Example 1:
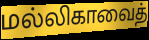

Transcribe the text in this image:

மல்லிகாவைத்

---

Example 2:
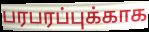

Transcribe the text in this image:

பரபரப்புக்காக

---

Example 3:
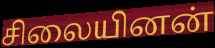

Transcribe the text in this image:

சிலையினன்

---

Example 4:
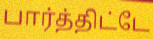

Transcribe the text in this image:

பார்த்திட்டே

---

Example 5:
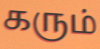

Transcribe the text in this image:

கரும்